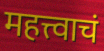
महत्त्वाचं